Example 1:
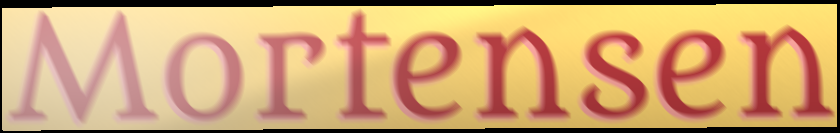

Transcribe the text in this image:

Mortensen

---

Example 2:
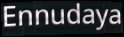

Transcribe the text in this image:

Ennudaya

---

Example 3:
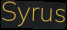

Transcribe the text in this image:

Syrus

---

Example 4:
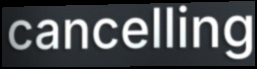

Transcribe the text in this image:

cancelling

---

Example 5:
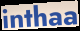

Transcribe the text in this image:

inthaa